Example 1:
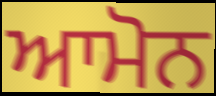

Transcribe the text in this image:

ਆਮੋਨ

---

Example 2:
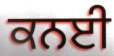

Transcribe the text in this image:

ਕਨਈ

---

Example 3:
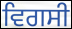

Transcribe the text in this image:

ਵਿਗਸੀ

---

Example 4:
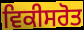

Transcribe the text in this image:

ਵਿਕੀਸਰੋਤ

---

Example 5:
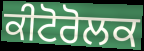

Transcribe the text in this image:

ਕੀਟੋਰੋਲਕ